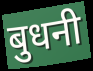
बुधनी